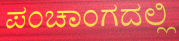
ಪಂಚಾಂಗದಲ್ಲಿ